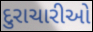
દુરાચારીઓ